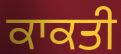
ਕਾਕਤੀ